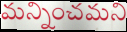
మన్నించమని